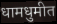
धामधुमीत